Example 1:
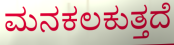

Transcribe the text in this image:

ಮನಕಲಕುತ್ತದೆ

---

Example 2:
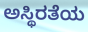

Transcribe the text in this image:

ಅಸ್ಥಿರತೆಯ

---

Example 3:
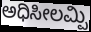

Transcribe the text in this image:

ಅಧಿಸೀಲಮ್ಪಿ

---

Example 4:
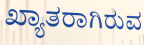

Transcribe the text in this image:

ಖ್ಯಾತರಾಗಿರುವ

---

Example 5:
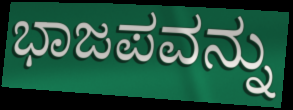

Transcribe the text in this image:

ಭಾಜಪವನ್ನು